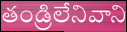
తండ్రిలేనివాని